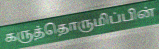
கருத்தொருமிப்பின்